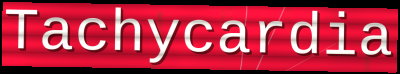
Tachycardia